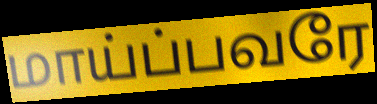
மாய்ப்பவரே